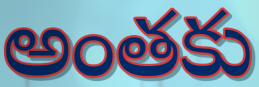
అంతకు